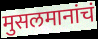
मुसलमानांचं